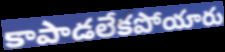
కాపాడలేకపోయారు